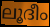
ലൂദീം